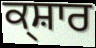
ਕ੍ਸ਼ਾਰ